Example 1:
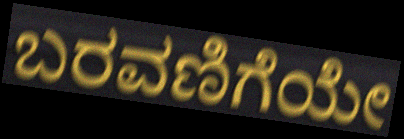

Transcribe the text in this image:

ಬರವಣಿಗೆಯೇ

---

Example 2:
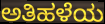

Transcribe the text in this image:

ಅತಿಹಳೆಯ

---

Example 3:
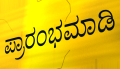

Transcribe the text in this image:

ಪ್ರಾರಂಭಮಾಡಿ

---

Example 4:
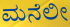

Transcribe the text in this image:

ಮನೆಲೀ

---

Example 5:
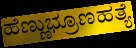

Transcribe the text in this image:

ಹೆಣ್ಣುಭ್ರೂಣಹತ್ಯೆ